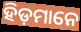
ହିଡ଼ମାନେ